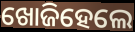
ଖୋଜିହେଲେ